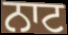
ਨਾਟ